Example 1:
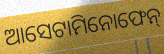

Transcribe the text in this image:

ଆସେଟାମିନୋଫେନ୍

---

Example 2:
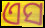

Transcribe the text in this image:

ଏସ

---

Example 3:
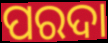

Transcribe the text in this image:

ପରଦା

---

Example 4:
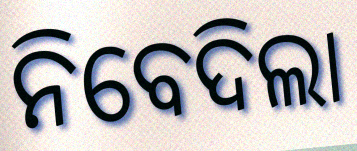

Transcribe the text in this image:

ନିବେଦିଲା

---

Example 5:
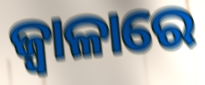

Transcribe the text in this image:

ଜ୍ଵାଳାରେ